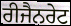
ਰੀਜੈਨਰੇਟ